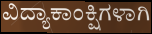
ವಿದ್ಯಾಕಾಂಕ್ಷಿಗಳಾಗಿ